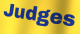
Judges